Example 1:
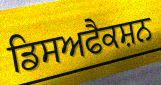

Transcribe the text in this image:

ਡਿਸਅਫੈਕਸ਼ਨ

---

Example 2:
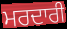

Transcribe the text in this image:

ਮਰਦਾਰੀ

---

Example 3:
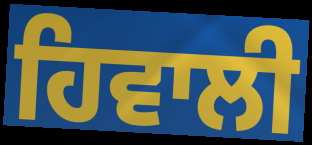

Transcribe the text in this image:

ਹਿਵਾਲੀ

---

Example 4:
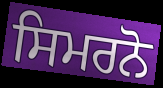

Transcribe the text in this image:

ਸਿਮਰਨੋ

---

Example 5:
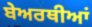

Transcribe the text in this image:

ਬੇਅਰਥੀਆਂ